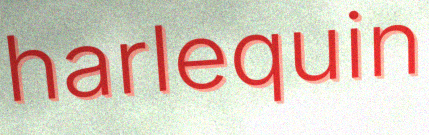
harlequin